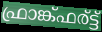
ഫ്രാങ്ക്ഫര്ട്ട്